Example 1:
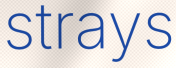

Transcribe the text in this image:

strays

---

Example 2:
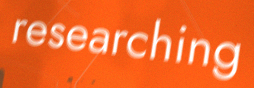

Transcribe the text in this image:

researching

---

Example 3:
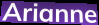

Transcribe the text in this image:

Arianne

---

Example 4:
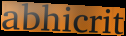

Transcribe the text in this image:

abhicrit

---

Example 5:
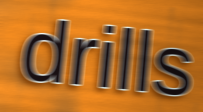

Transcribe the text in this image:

drills